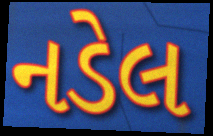
નડેલ